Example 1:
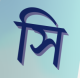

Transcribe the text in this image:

সি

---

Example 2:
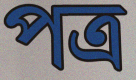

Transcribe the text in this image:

পত্ৰ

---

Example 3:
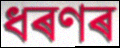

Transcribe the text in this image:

ধৰণৰ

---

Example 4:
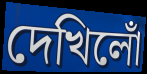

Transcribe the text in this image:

দেখিলোঁ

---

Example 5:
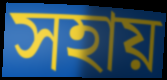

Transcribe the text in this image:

সহায়